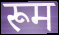
रूम